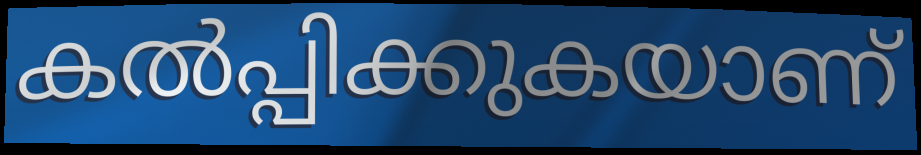
കൽപ്പിക്കുകയാണ്